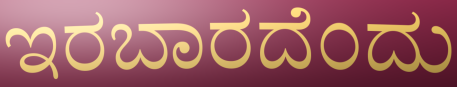
ಇರಬಾರದೆಂದು